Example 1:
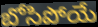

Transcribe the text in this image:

బోసిపోయే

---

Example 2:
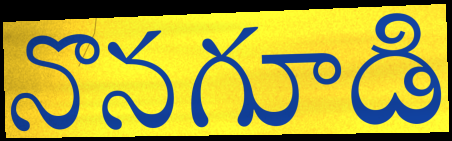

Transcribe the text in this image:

నొనగూడి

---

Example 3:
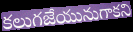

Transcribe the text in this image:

కలుగజేయునుగాకని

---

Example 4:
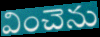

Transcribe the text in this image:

వించెను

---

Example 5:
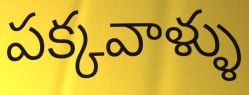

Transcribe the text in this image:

పక్కవాళ్ళు